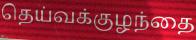
தெய்வக்குழந்தை